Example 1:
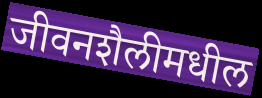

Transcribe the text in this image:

जीवनशैलीमधील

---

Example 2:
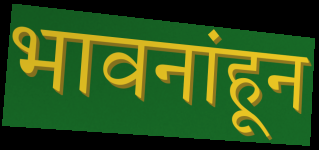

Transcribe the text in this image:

भावनांहून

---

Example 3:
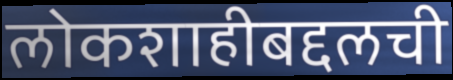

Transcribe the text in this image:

लोकशाहीबद्दलची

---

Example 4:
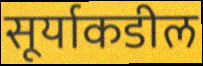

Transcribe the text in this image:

सूर्याकडील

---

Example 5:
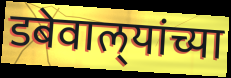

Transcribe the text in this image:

डबेवाल्यांच्या